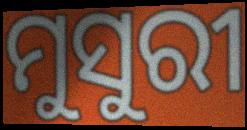
ମୁସୁରୀ